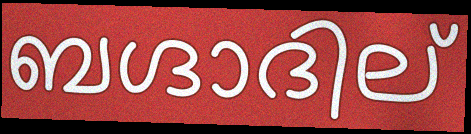
ബഗ്ദാദില്